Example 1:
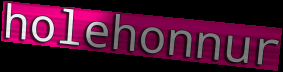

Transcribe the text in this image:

holehonnur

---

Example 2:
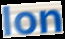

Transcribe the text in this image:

Ion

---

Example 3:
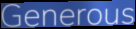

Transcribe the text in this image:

Generous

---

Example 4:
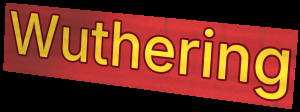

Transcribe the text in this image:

Wuthering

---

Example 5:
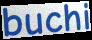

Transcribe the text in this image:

buchi